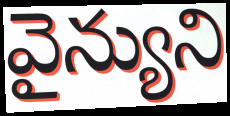
వైన్యుని